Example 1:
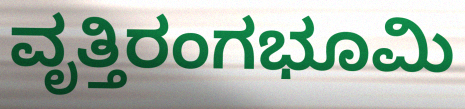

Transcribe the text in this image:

ವೃತ್ತಿರಂಗಭೂಮಿ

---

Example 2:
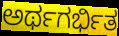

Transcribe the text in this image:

ಅರ್ಥಗರ್ಭಿತ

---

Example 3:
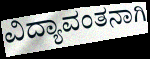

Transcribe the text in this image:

ವಿದ್ಯಾವಂತನಾಗಿ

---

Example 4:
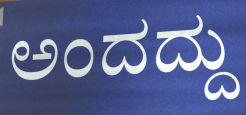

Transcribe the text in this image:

ಅಂದದ್ದು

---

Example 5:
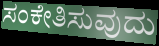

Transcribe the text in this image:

ಸಂಕೇತಿಸುವುದು